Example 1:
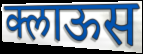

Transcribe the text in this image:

क्लाऊस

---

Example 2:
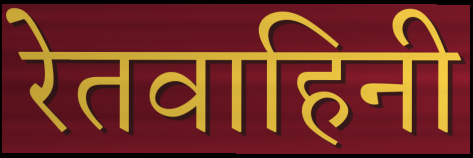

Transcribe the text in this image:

रेतवाहिनी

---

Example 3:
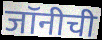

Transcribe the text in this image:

जॉनीची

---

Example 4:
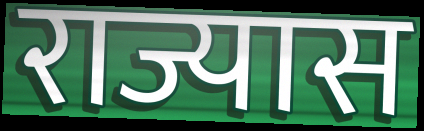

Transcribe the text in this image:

राज्यास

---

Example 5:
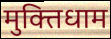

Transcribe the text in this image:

मुक्तिधाम